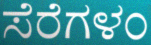
ಸೆರೆಗಳಂ